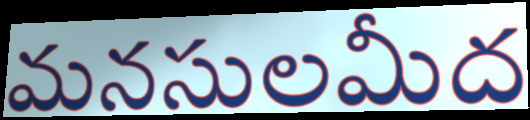
మనసులమీద